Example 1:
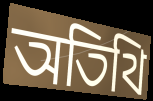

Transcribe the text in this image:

অতিথি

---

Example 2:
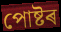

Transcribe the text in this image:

পোষ্টৰ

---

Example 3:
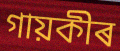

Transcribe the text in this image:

গায়কীৰ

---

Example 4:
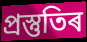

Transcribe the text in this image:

প্ৰস্তুতিৰ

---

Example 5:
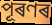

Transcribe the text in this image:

পূৰণৰ